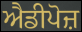
ਐਡੀਪੋਜ਼